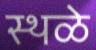
स्थळे